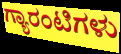
ಗ್ಯಾರಂಟಿಗಳು